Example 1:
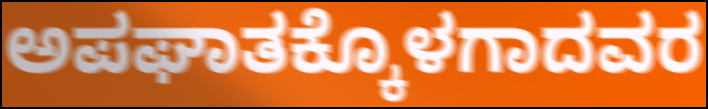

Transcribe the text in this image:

ಅಪಘಾತಕ್ಕೊಳಗಾದವರ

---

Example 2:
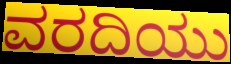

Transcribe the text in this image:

ವರದಿಯು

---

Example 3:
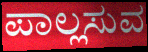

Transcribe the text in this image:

ಪಾಲ್ಲಸುವ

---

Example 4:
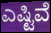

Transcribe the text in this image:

ಎಷ್ಟಿವೆ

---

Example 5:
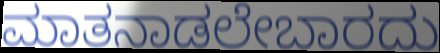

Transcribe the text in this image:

ಮಾತನಾಡಲೇಬಾರದು